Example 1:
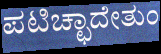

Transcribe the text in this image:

ಪಟಿಚ್ಛಾದೇತುಂ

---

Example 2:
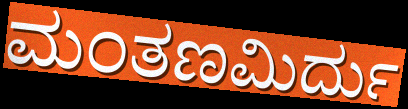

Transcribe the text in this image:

ಮಂತಣಮಿರ್ದು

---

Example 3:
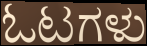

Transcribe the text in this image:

ಓಟಗಳು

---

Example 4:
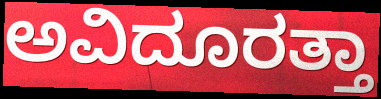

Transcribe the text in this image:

ಅವಿದೂರತ್ತಾ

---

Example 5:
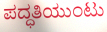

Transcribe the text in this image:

ಪದ್ಧತಿಯುಂಟು